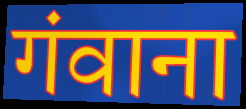
गंवाना